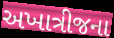
અખાત્રીજના